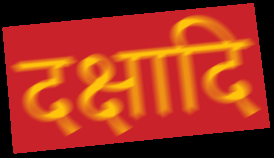
दक्षादि